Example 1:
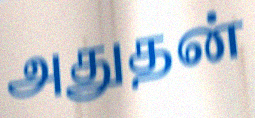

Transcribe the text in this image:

அதுதன்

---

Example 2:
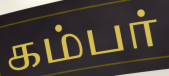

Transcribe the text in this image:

கம்பர்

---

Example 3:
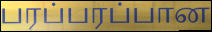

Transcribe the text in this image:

பரப்பரப்பான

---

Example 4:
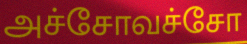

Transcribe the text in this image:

அச்சோவச்சோ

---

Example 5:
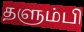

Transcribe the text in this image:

தளும்பி